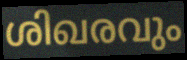
ശിഖരവും